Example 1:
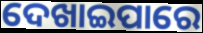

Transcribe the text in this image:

ଦେଖାଇପାରେ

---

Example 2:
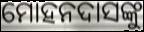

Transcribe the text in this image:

ମୋହନଦାସଙ୍କୁ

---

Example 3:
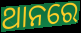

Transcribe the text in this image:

ଥାନରେ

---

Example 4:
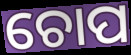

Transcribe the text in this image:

ଚୋପ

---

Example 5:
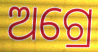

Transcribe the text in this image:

ଅଗ୍ରେ